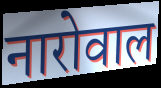
नारोवाल